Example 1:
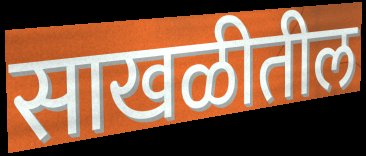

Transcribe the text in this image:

साखळीतील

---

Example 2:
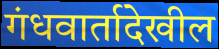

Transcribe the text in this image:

गंधवार्तादेखील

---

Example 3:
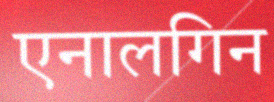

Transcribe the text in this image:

एनालगिन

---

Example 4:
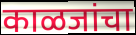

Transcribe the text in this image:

काळजांचा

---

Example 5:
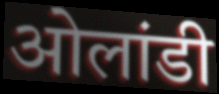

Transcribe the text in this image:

ओलांडी